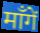
माँगें